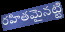
రహితమైనట్టి